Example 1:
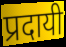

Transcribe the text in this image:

प्रदायी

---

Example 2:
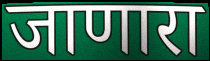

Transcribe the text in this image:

जाणारा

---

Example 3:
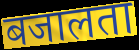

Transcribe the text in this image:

बजालता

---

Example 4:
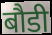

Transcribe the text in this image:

बौडी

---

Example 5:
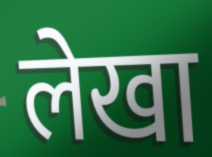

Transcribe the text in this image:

लेखा